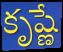
కృష్ణే